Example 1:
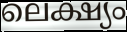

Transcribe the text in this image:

ലെക്ഷ്യം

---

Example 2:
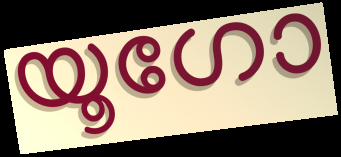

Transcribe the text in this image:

യൂഗോ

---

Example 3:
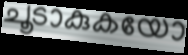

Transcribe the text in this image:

ചൂടാകുകയോ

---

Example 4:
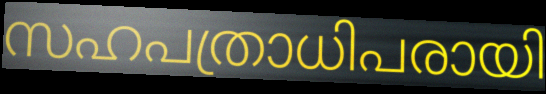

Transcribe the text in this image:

സഹപത്രാധിപരായി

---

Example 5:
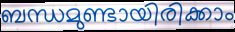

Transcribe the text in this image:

ബന്ധമുണ്ടായിരിക്കാം